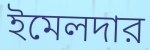
ইমেলদার